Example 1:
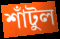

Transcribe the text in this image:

শাঁটুল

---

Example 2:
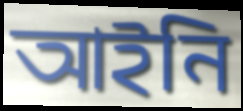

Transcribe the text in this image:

আইনি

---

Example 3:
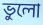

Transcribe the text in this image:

ভুলো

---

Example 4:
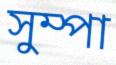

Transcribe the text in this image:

সুম্পা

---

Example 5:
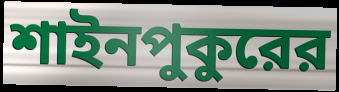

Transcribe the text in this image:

শাইনপুকুরের